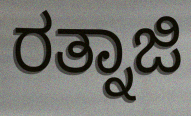
ರತ್ನಾಜಿ